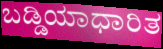
ಬಡ್ಡಿಯಾಧಾರಿತ